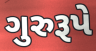
ગુરુરૂપે